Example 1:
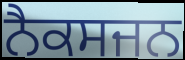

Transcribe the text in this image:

ਨੈਕਸਜਨ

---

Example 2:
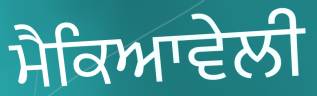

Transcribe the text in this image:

ਮੈਕਿਆਵੇਲੀ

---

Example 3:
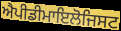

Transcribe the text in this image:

ਐਪੀਡੀਮਾਇਲੋਜਿਸਟ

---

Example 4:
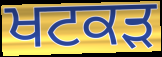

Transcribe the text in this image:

ਖਟਕੜ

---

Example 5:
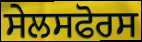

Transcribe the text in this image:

ਸੇਲਸਫੋਰਸ